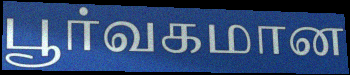
பூர்வகமான